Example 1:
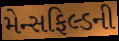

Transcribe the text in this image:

મેન્સફિલ્ડની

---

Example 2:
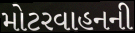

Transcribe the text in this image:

મોટરવાહનની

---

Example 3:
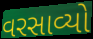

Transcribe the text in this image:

વરસાવ્યો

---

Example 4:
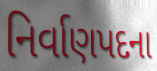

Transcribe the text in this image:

નિર્વાણપદના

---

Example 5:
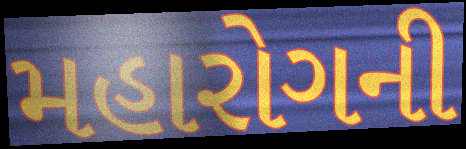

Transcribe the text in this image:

મહારોગની